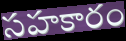
సహకారం